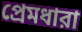
প্রেমধারা